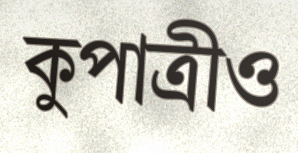
কুপাত্রীও